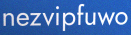
nezvipfuwo